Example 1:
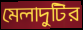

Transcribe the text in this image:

মেলাদুটির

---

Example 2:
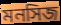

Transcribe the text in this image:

মনসিজ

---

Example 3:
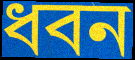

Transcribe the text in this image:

ধবন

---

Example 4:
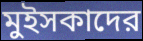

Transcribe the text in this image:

মুইসকাদের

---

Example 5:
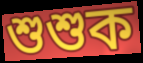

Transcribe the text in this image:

শুশুক